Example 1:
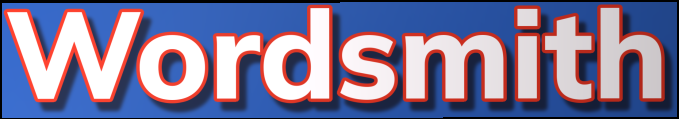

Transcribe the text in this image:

Wordsmith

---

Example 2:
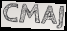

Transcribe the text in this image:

CMAJ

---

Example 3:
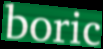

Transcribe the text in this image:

boric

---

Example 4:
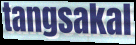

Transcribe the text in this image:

tangsakal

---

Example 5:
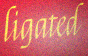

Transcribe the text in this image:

ligated